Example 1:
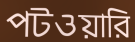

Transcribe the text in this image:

পটওয়ারি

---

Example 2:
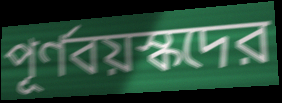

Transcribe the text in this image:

পূর্ণবয়স্কদের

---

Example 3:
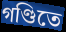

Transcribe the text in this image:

গণ্ডিতে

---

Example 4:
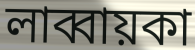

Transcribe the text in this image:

লাব্বায়কা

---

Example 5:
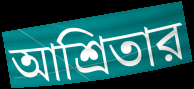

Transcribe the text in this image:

আশ্রিতার